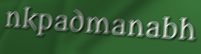
nkpadmanabh